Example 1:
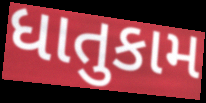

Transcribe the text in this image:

ધાતુકામ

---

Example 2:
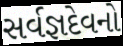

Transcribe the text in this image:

સર્વજ્ઞદેવનો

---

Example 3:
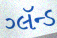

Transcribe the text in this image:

ગ્લૅન્ડ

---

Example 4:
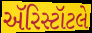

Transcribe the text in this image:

ઍરિસ્ટૉટલે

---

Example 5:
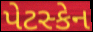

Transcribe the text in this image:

પેટસ્કેન